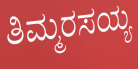
ತಿಮ್ಮರಸಯ್ಯ